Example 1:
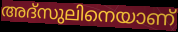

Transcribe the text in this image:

അദ്സുലിനെയാണ്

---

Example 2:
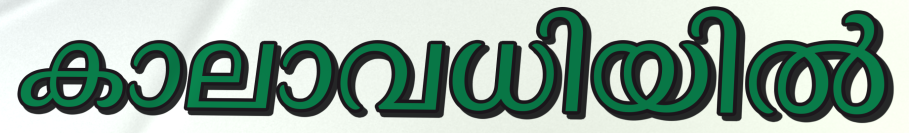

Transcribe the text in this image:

കാലാവധിയിൽ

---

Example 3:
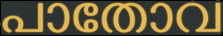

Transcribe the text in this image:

പാതോവ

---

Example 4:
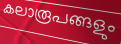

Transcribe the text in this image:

കലാരൂപങ്ങളും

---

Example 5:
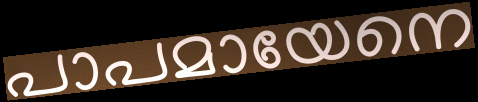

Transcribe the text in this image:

പാപമായേനെ